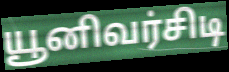
யூனிவர்சிடி